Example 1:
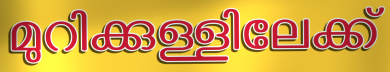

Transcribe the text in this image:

മുറിക്കുള്ളിലേക്ക്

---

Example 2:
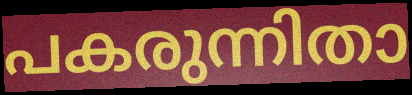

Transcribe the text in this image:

പകരുന്നിതാ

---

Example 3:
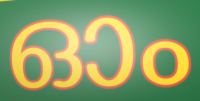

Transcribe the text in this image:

ഓം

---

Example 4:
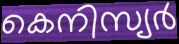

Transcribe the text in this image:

കെനിസ്യർ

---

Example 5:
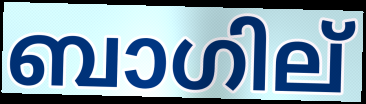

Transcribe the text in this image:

ബാഗില്